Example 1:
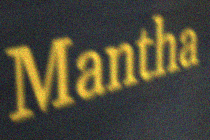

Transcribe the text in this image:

Mantha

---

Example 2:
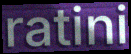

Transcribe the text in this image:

ratini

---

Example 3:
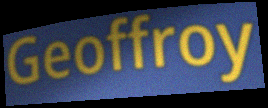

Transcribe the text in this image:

Geoffroy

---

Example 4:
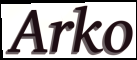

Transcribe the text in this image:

Arko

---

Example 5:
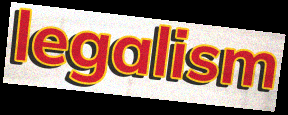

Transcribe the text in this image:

legalism